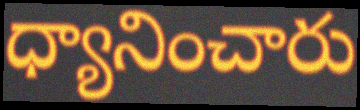
ధ్యానించారు